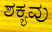
ಶಕ್ಯವು